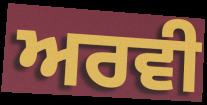
ਅਰਵੀ